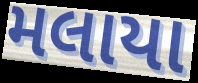
મલાયા